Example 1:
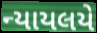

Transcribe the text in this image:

ન્યાયલયે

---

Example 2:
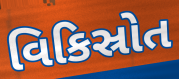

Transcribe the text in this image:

વિકિસ્રોત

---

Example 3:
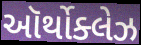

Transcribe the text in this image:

ઑર્થોક્લેઝ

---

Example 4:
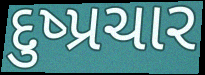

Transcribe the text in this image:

દુષ્પ્રચાર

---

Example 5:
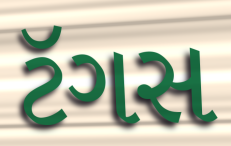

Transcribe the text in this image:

ટૅગસ